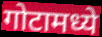
गोटामध्ये